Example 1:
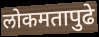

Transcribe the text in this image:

लोकमतापुढे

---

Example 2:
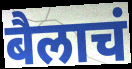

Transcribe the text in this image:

बैलाचं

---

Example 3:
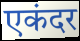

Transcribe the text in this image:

एकंदर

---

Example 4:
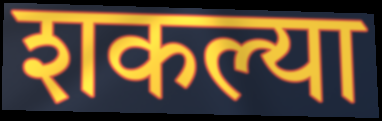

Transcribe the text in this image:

शकल्या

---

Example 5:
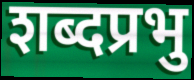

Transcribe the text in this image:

शब्दप्रभु